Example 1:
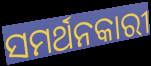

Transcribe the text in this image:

ସମର୍ଥନକାରୀ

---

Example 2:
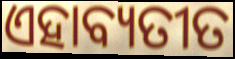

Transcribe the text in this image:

ଏହାବ୍ୟତୀତ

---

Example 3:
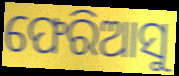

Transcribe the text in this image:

ଫେରିଆସୁ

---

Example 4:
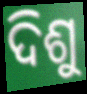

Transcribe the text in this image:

ଦିଶୁ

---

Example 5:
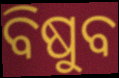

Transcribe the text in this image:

ବିଷୁବ